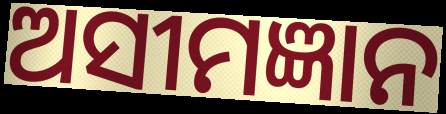
ଅସୀମଜ୍ଞାନ